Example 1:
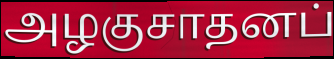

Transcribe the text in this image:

அழகுசாதனப்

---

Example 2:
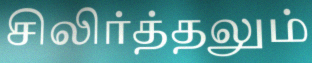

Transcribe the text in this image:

சிலிர்த்தலும்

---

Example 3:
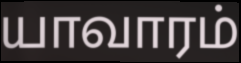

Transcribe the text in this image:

யாவாரம்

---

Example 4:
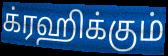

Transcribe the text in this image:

க்ரஹிக்கும்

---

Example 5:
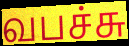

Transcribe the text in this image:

வபச்சு